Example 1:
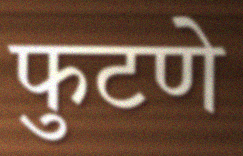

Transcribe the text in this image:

फुटणे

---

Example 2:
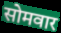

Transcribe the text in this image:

सोमवार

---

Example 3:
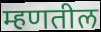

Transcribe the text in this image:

म्हणतील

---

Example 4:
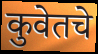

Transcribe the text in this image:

कुवेतचे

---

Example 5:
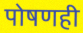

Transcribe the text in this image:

पोषणही